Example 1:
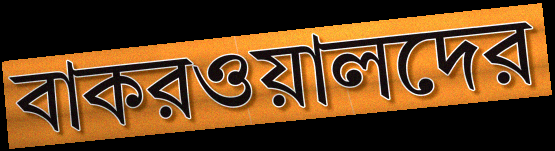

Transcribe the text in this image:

বাকরওয়ালদের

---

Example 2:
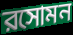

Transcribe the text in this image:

রসোমন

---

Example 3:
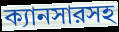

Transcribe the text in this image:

ক্যানসারসহ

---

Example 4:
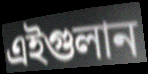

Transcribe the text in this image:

এইগুলান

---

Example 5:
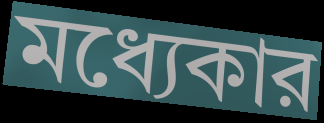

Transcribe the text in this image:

মধ্যেকার